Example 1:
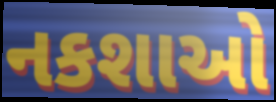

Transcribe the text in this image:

નકશાઓ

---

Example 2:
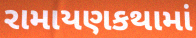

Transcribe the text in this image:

રામાયણકથામાં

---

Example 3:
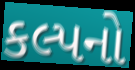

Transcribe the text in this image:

કલ્પનો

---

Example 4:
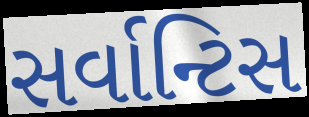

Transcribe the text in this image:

સર્વાન્ટિસ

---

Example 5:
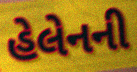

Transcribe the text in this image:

હેલેનની